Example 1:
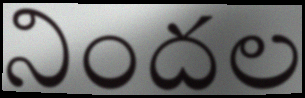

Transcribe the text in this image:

నిందల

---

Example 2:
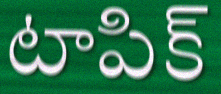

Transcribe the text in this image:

టాపిక్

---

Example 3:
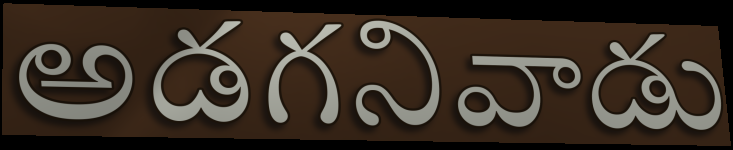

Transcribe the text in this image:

అడగనివాడు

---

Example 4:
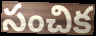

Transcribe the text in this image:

సంచిక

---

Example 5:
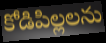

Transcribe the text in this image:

కోడిపిల్లలను